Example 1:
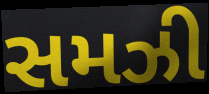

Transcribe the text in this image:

સમઝી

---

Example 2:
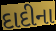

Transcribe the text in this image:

દાદીના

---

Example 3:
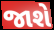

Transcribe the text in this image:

જાશે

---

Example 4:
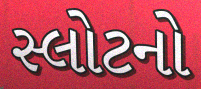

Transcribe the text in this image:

સ્લોટનો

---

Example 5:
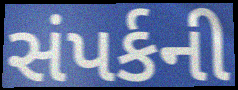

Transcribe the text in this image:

સંપર્કની